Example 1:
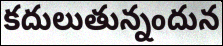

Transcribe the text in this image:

కదులుతున్నందున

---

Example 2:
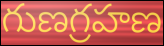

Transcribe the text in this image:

గుణగ్రహణ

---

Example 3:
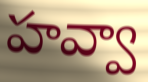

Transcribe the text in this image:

హవ్వా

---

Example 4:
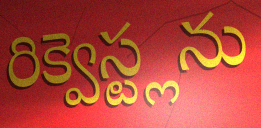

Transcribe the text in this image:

రిక్వెస్ట్లను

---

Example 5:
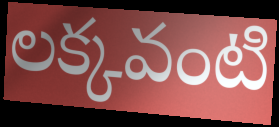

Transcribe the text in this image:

లక్కవంటి